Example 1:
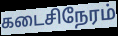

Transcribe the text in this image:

கடைசிநேரம்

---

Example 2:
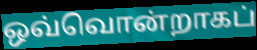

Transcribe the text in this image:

ஒவ்வொன்றாகப்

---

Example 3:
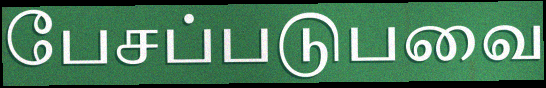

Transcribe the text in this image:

பேசப்படுபவை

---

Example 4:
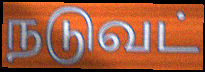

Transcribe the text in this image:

நடுவட்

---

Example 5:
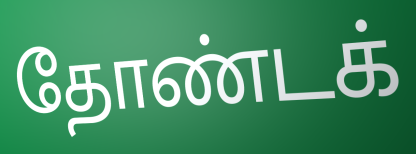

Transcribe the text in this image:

தோண்டக்